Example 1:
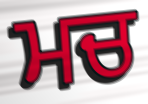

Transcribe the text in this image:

ਮਚ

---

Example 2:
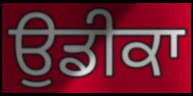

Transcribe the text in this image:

ਉਡੀਕਾ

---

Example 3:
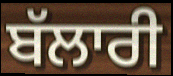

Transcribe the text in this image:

ਬੱਲਾਰੀ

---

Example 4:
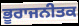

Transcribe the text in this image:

ਭੂਰਾਜਨੀਤਕ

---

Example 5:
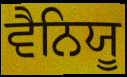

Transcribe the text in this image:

ਵੈਨਿਯੂ